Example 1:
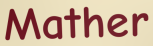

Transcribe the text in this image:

Mather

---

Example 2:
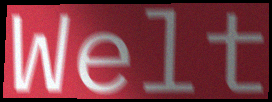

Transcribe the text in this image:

Welt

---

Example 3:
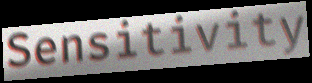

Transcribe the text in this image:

Sensitivity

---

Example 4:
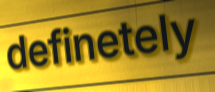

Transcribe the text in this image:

definetely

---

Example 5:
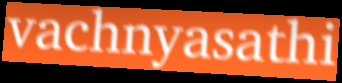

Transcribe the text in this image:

vachnyasathi